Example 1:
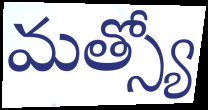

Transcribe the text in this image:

మత్స్యో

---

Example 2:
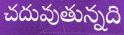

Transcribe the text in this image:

చదువుతున్నది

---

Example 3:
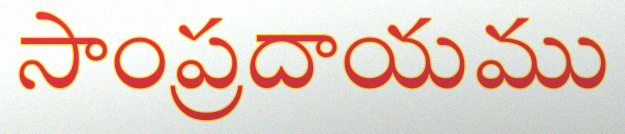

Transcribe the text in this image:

సాంప్రదాయము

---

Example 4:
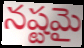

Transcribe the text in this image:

నష్టమై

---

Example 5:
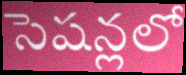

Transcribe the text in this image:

సెషన్లలో